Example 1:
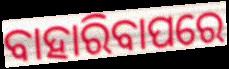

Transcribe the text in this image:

ବାହାରିବାପରେ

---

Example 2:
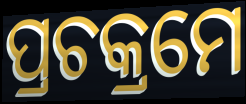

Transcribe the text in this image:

ପ୍ରଚକ୍ରମେ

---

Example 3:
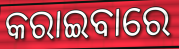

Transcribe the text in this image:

କରାଇବାରେ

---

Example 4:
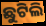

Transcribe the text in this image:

ଛୁଟିଲି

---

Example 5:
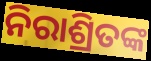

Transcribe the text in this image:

ନିରାଶ୍ରିତଙ୍କ